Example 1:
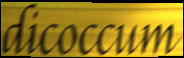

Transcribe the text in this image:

dicoccum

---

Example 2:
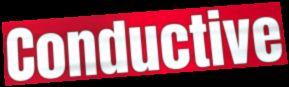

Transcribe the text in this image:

Conductive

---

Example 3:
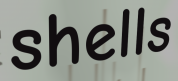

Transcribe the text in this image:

shells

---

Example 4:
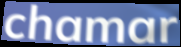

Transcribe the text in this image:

chamar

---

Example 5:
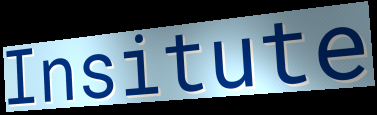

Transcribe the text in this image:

Insitute